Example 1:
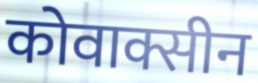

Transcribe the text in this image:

कोवाक्सीन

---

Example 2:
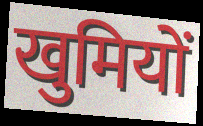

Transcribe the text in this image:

खुमियों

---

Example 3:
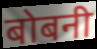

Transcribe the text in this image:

बोबनी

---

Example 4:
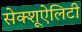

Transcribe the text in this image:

सेक्शूऐलिटी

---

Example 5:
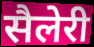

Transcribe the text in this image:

सैलेरी